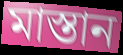
মাস্তান